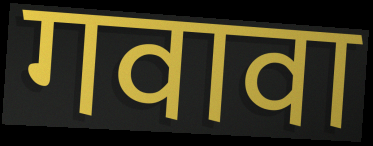
गवावा